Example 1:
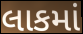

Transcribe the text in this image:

લાકમાં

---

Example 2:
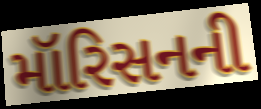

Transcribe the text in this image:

મૉરિસનની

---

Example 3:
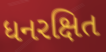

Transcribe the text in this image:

ધનરક્ષિત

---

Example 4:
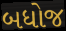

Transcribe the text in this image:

બધોજ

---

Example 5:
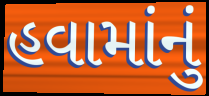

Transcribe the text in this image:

હવામાંનું